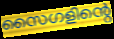
സൈഗളിന്റെ